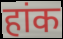
हांक